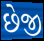
છેજી